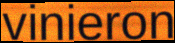
vinieron